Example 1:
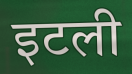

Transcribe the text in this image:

इटली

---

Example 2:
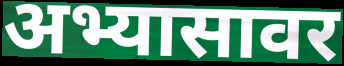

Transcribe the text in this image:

अभ्यासावर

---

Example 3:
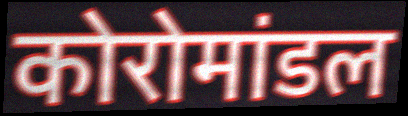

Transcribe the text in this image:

कोरोमांडल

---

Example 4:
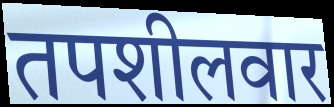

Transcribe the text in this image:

तपशीलवार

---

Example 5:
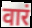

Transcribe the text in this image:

वारं